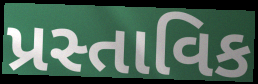
પ્રસ્તાવિક